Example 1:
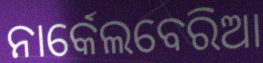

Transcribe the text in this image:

ନାର୍କେଲବେରିଆ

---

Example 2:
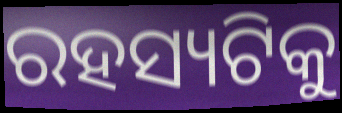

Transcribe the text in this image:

ରହସ୍ୟଟିକୁ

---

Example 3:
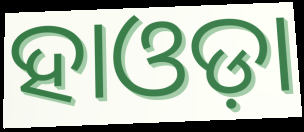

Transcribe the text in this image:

ହାଓଡ଼ା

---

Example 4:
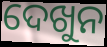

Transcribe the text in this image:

ଦେଖୁନ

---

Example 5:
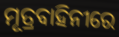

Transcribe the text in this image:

ମୂତ୍ରବାହିନୀରେ